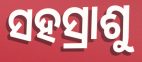
ସହସ୍ରାଶୁ